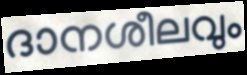
ദാനശീലവും